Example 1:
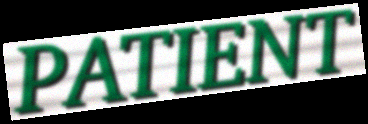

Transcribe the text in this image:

PATIENT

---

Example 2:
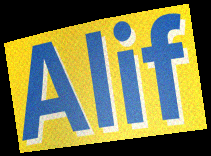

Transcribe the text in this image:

Alif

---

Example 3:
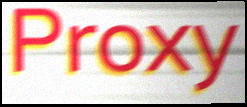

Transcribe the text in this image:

Proxy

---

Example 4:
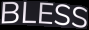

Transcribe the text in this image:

BLESS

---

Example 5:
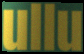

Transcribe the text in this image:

ullu